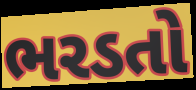
ભરડતો